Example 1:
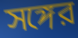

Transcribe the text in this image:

সঙ্গের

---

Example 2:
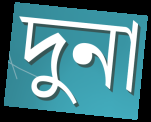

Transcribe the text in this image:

দুনা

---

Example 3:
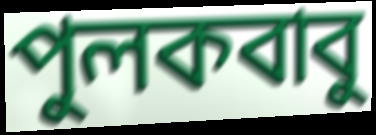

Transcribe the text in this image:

পুলকবাবু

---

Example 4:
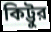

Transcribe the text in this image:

কিট্টুর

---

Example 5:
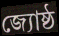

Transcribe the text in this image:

জ্যোষ্ঠ